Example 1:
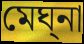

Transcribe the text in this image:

মেঘ্‌না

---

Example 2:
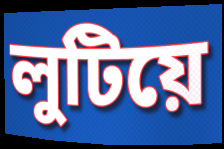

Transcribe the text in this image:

লুটিয়ে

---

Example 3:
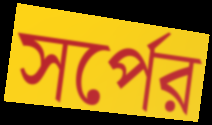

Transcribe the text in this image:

সর্পের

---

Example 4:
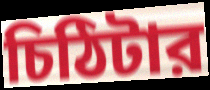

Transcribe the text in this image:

চিঠিটার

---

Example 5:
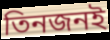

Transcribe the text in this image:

তিনজনই